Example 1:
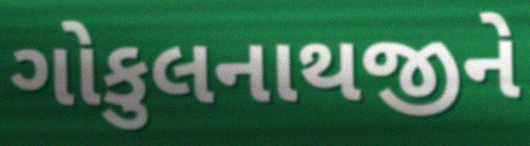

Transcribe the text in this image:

ગોકુલનાથજીને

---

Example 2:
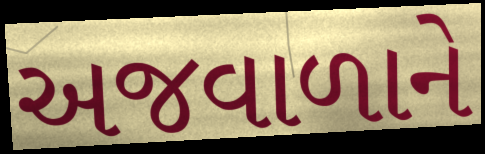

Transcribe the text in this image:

અજવાળાને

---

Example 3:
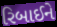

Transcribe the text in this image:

રિબાઈને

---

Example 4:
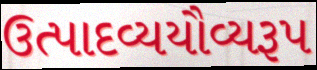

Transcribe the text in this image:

ઉત્પાદવ્યયૌવ્યરૂપ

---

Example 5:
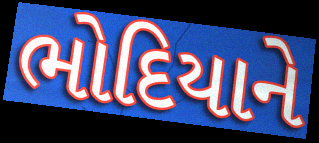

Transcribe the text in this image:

ભોદિયાને